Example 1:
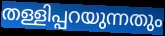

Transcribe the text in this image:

തള്ളിപ്പറയുന്നതും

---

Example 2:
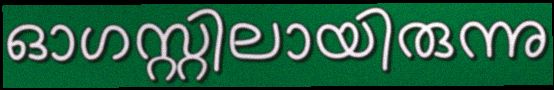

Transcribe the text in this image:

ഓഗസ്റ്റിലായിരുന്നു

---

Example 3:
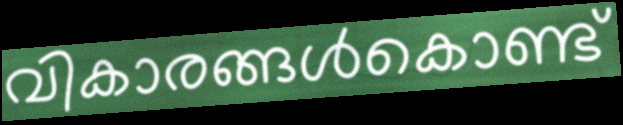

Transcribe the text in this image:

വികാരങ്ങൾകൊണ്ട്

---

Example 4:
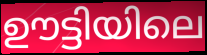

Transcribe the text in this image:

ഊട്ടിയിലെ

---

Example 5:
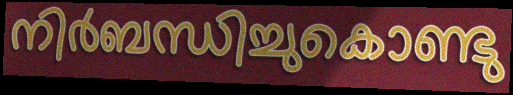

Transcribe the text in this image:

നിർബന്ധിച്ചുകൊണ്ടു